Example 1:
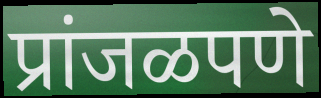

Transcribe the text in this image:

प्रांजळपणे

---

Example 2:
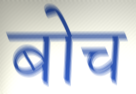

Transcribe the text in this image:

बोच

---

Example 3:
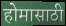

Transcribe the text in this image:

होमासाठी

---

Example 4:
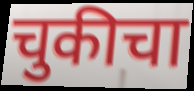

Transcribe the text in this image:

चुकीचा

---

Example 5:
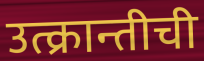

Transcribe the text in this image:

उत्क्रान्तीची